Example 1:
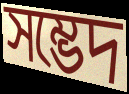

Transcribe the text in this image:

সম্ভেদ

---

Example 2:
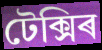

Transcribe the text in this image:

টেক্সিৰ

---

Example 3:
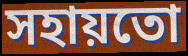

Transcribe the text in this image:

সহায়তো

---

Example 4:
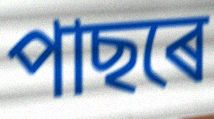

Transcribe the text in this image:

পাছৰে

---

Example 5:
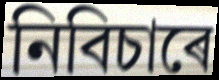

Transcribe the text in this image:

নিবিচাৰে